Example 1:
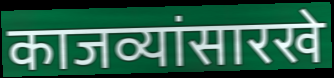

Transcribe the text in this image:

काजव्यांसारखे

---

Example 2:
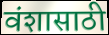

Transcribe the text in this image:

वंशासाठी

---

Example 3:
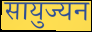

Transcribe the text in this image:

सायुज्यन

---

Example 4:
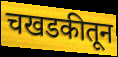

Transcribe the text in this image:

चखडकीतून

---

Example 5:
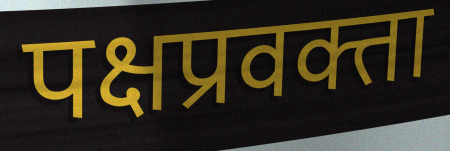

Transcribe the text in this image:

पक्षप्रवक्ता